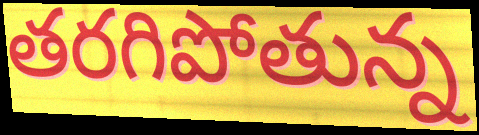
తరగిపోతున్న